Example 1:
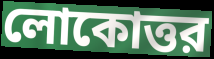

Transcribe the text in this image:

লোকোত্তর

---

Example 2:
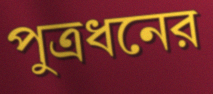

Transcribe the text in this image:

পুত্রধনের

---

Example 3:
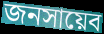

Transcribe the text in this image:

জনসায়েব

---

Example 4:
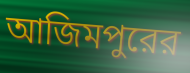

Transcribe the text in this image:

আজিমপুরের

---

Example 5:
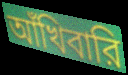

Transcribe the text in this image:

আঁখিবারি